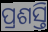
ପ୍ରଶସ୍ତି